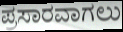
ಪ್ರಸಾರವಾಗಲು